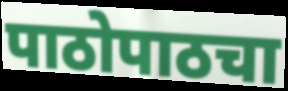
पाठोपाठचा